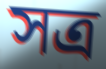
সত্ৰ